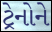
ટ્રેનોને